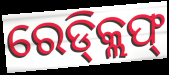
ରେଡ୍କ୍ଲିଫ୍